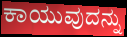
ಕಾಯುವುದನ್ನು